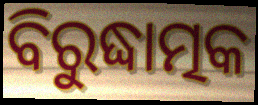
ବିରୁଦ୍ଧାତ୍ମକ